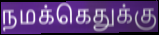
நமக்கெதுக்கு